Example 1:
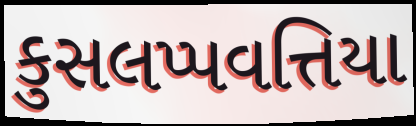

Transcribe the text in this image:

કુસલપ્પવત્તિયા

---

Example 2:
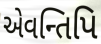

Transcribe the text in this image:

એવન્તિપિ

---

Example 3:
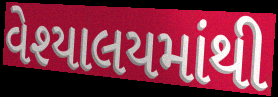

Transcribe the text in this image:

વેશ્યાલયમાંથી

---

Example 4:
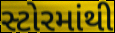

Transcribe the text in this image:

સ્ટોરમાંથી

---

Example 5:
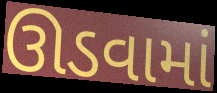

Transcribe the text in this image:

ઊડવામાં